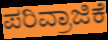
ಪರಿವ್ರಾಜಿಕೆ